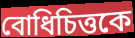
বোধিচিত্তকে